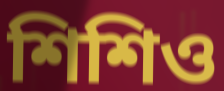
শিশিও